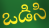
ఒడిసి